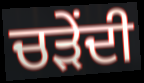
ਚੜੇਂਦੀ